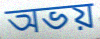
অভয়